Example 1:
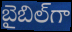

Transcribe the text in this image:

బైబిల్‌గా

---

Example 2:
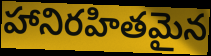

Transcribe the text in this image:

హానిరహితమైన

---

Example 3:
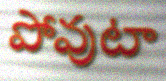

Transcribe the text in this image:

పోవుటా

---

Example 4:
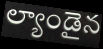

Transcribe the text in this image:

ల్యాండైన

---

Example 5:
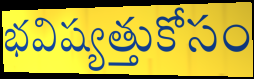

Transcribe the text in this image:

భవిష్యత్తుకోసం